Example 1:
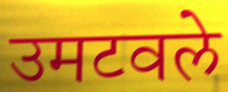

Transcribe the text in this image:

उमटवले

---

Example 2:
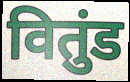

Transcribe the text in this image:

वितुंड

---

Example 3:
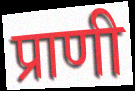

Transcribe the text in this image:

प्राणी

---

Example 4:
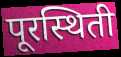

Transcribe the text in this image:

पूरस्थिती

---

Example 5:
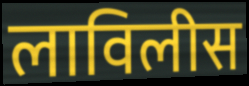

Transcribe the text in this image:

लाविलीस